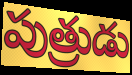
పుత్రుడు